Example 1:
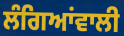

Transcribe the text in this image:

ਲੰਗਿਆਂਵਾਲੀ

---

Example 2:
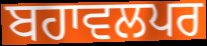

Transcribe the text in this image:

ਬਹਾਵਲਪਰ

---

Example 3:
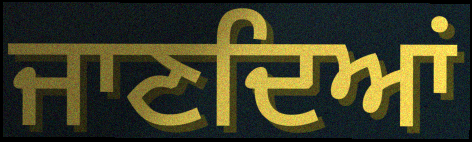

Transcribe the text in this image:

ਜਾਣਦਿਆਂ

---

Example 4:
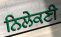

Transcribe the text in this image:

ਨਿਲੇਕਣੀ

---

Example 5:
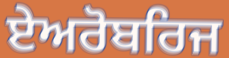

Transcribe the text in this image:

ਏਅਰੋਬਰਿਜ